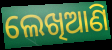
ଲେଖିଆଣି